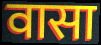
वासा